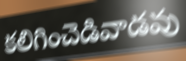
కలిగించెడివాడవు